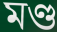
মণ্ড